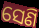
ସେଣି